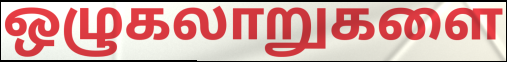
ஒழுகலாறுகளை